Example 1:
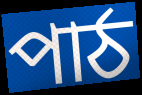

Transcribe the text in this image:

পাঠ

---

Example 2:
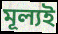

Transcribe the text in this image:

মূল্যই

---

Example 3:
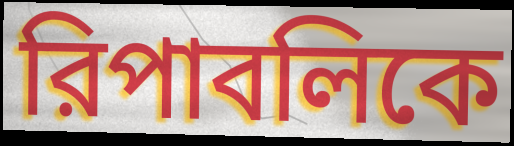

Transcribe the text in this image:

রিপাবলিকে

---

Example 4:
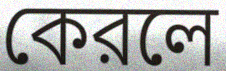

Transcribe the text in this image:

কেরলে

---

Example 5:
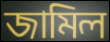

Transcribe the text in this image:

জামিল